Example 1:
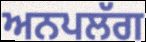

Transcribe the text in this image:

ਅਨਪਲੱਗ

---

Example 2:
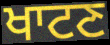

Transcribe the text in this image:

ਖਾਟਣ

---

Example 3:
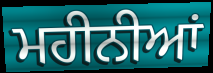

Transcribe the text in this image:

ਮਹੀਨੀਆਂ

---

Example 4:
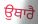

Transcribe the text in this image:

ਉਥਾਰੈ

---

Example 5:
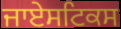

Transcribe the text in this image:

ਜਾਏਸਟਿਕਸ